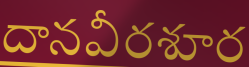
దానవీరశూర